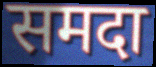
समदा